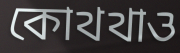
কোথথাও